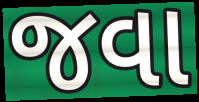
જવા